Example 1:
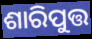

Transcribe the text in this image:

ଶାରିପୁତ୍ତ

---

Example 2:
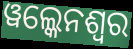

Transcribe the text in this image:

ୱଲ୍କେନଶ୍ୱର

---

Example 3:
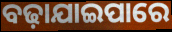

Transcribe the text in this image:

ବଢ଼ାଯାଇପାରେ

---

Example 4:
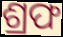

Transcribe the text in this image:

ଶ୍ରଫ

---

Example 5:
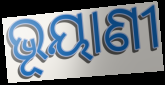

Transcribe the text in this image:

ଭୂୟାଣୀ